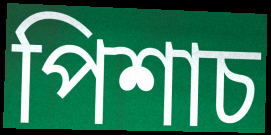
পিশাচ